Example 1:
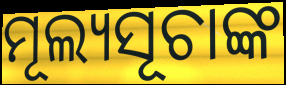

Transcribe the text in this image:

ମୂଲ୍ୟସୂଚାଙ୍କ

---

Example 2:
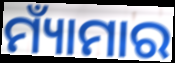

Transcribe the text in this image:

ମ୍ୟାଁମାର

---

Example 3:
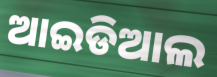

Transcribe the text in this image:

ଆଇଡିଆଲ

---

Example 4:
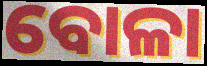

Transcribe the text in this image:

ବୋଳା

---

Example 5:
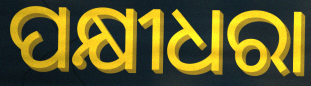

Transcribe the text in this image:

ପକ୍ଷୀଧରା